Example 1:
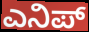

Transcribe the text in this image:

ಎನಿಪ್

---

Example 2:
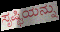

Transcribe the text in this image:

ಸೃಷ್ಟಿಯನ್ನು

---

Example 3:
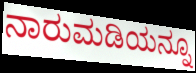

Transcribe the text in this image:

ನಾರುಮಡಿಯನ್ನೂ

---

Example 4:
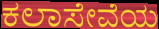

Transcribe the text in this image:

ಕಲಾಸೇವೆಯ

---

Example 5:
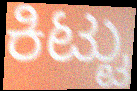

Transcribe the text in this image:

ಕಿಟ್ಟು